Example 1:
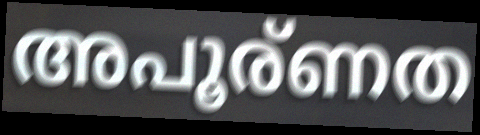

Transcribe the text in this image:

അപൂര്ണത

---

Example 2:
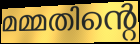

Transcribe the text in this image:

മമ്മതിന്റെ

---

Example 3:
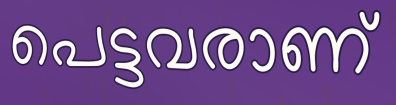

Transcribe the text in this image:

പെട്ടവരാണ്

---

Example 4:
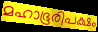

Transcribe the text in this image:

മഹാഭൂരിപക്ഷം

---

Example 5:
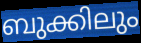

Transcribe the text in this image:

ബുക്കിലും